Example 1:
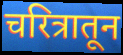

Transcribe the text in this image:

चरित्रातून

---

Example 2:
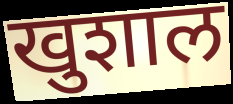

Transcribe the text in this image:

खुशाल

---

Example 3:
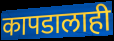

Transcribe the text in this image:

कापडालाही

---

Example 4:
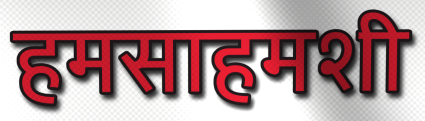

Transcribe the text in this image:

हमसाहमशी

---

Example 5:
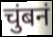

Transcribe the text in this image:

चुंबनं